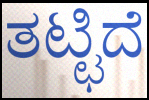
ತಟ್ಟಿದೆ